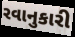
રવાનુકારી